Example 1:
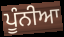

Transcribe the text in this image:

ਪੂੰਨੀਆ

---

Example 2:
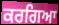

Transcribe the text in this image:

ਕਰਗਿਆ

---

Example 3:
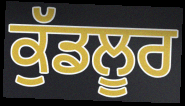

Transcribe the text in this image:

ਕੁੱਡਲੂਰ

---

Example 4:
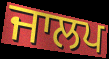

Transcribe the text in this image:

ਜਾਲਪ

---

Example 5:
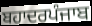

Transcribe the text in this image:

ਬਹਾਦਰਪੰਜਾਬ